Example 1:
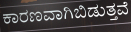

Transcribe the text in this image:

ಕಾರಣವಾಗಿಬಿಡುತ್ತವೆ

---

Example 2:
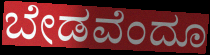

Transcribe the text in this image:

ಬೇಡವೆಂದೂ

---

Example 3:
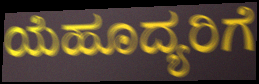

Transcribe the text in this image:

ಯೆಹೂದ್ಯರಿಗೆ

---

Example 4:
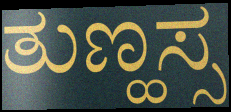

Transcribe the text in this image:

ತುಣ್ಹಸ್ಸ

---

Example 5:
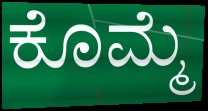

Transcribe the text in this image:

ಕೊಮ್ಮೆ